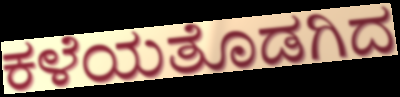
ಕಳೆಯತೊಡಗಿದ